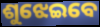
ଶୁଝେଇବେ